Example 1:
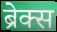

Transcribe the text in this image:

ब्रेक्स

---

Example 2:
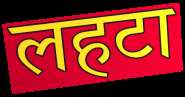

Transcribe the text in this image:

लहटा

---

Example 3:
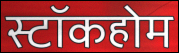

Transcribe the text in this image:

स्टॉकहोम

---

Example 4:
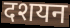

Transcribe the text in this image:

दशयन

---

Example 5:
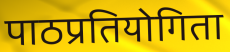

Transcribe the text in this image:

पाठप्रतियोगिता